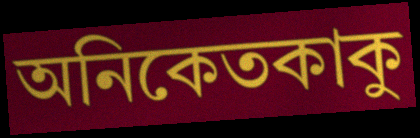
অনিকেতকাকু